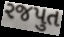
રજપુત